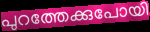
പുറത്തേക്കുപോയി